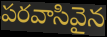
పరవాసివైన